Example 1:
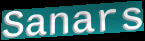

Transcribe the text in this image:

Sanars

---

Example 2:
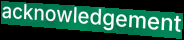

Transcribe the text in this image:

acknowledgement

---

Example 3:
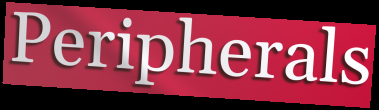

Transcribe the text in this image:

Peripherals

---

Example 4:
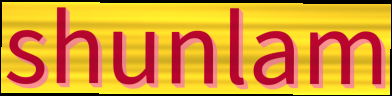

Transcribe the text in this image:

shunlam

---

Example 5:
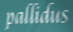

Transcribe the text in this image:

pallidus